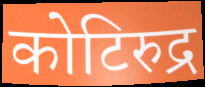
कोटिरुद्र